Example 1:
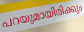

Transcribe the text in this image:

പറയുമായിരിക്കും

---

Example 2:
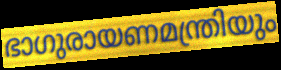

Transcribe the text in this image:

ഭാഗുരായണമന്ത്രിയും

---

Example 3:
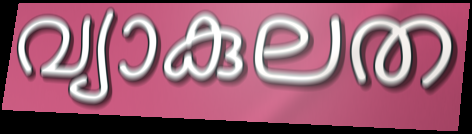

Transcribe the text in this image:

വ്യാകുലത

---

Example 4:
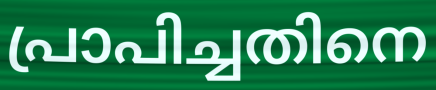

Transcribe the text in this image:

പ്രാപിച്ചതിനെ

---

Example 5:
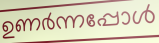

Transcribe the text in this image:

ഉണർന്നപ്പോൾ